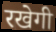
रखेगी